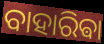
ବାହାରିଵା